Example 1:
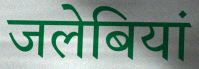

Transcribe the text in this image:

जलेबियां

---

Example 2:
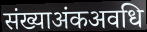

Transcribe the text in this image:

संख्याअंकअवधि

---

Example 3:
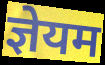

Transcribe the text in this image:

ज्ञेयम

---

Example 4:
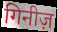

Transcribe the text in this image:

गिनीज़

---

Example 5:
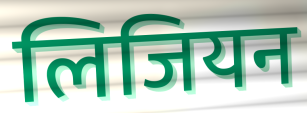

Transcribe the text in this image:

लिजियन